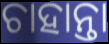
ଚାହାନ୍ତା